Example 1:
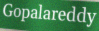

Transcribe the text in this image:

Gopalareddy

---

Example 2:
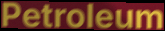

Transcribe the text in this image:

Petroleum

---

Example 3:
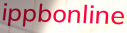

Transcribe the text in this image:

ippbonline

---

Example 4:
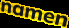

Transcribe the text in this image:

namen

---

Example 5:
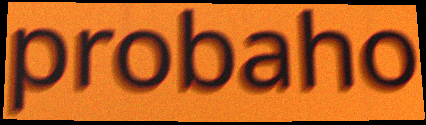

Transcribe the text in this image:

probaho